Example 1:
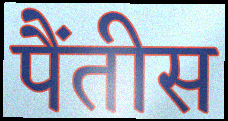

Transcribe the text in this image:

पैंतीस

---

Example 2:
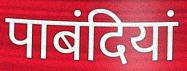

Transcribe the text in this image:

पाबंदियां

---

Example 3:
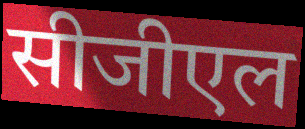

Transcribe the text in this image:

सीजीएल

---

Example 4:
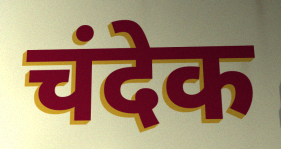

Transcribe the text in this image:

चंदेक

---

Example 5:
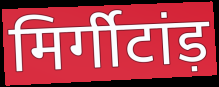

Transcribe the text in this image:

मिर्गीटांड़